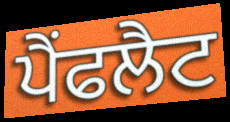
ਪੈਂਫਲੈਟ